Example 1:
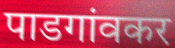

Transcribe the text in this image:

पाडगांवकर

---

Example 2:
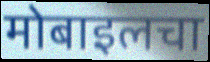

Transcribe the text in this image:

मोबाइलचा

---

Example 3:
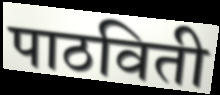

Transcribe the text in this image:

पाठविती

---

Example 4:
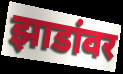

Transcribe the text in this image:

झाडांवर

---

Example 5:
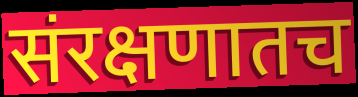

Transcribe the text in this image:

संरक्षणातच